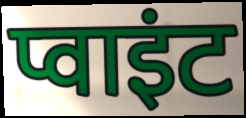
प्‍वाइंट